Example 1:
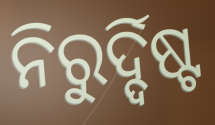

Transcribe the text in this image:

ନିରୁର୍ଦ୍ଦିଷ୍ଟ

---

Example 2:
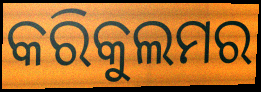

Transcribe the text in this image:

କରିକୁଲମର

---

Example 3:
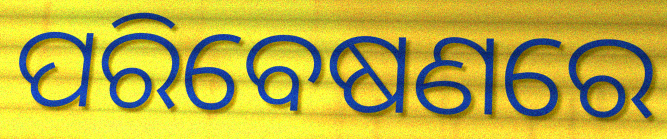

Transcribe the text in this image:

ପରିବେଷଣରେ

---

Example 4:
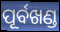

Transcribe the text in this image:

ପୂର୍ବଖଣ୍ଡ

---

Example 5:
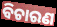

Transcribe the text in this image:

ବିଚାରଣ